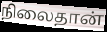
நிலைதான்